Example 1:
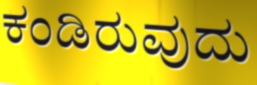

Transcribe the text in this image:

ಕಂಡಿರುವುದು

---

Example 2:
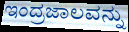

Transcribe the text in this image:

ಇಂದ್ರಜಾಲವನ್ನು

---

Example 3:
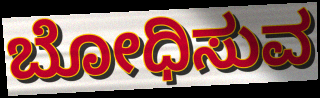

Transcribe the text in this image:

ಬೋಧಿಸುವ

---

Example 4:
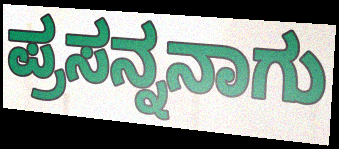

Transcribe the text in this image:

ಪ್ರಸನ್ನನಾಗು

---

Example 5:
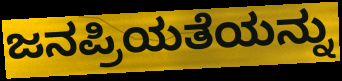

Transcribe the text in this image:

ಜನಪ್ರಿಯತೆಯನ್ನು